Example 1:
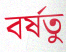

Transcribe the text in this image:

বর্ষতু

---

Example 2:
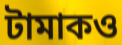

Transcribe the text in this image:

টামাকও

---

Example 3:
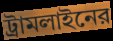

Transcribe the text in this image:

ট্রামলাইনের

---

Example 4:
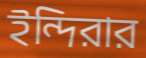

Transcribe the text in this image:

ইন্দিরার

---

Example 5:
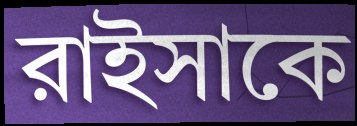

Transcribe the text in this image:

রাইসাকে